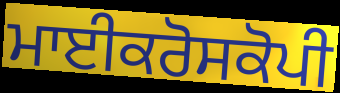
ਮਾਈਕਰੋਸਕੋਪੀ